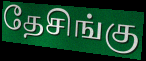
தேசிங்கு